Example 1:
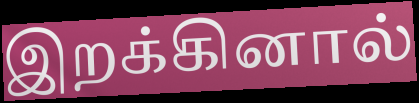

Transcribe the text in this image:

இறக்கினால்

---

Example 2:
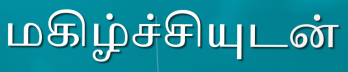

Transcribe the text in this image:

மகிழ்ச்சியுடன்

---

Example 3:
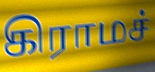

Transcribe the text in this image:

கிராமச்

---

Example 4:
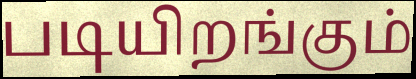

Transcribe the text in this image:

படியிறங்கும்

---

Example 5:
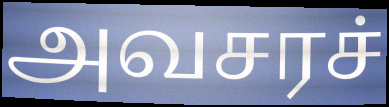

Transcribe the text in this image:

அவசரச்